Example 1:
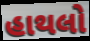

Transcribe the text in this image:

હાથલો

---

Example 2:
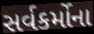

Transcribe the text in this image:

સર્વકર્મોના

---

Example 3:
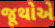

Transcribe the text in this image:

જૂથોએ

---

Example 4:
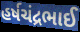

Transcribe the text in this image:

હર્ષચંદ્રભાઈ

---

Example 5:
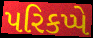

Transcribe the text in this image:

પરિકપ્પે